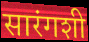
सारंगशी